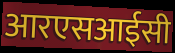
आरएसआईसी